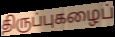
திருப்புகழைப்